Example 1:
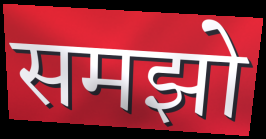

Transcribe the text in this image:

समझो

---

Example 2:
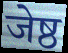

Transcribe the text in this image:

जेष्ठ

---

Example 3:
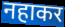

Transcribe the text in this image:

नहाकर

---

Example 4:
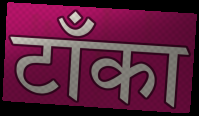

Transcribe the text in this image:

टाँका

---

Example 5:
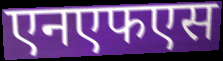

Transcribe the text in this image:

एनएफएस